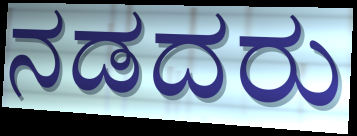
ನಡದರು